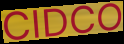
CIDCO